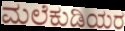
ಮಲೆಕುಡಿಯರ